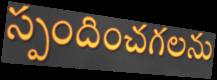
స్పందించగలను